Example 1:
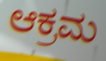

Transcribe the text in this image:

ಆಕ್ರಮ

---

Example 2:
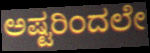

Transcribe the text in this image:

ಅಷ್ಟರಿಂದಲೇ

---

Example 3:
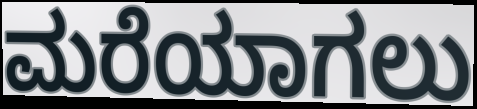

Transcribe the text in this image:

ಮರೆಯಾಗಲು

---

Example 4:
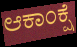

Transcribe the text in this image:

ಆಕಾಂಕ್ಷೆ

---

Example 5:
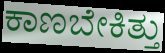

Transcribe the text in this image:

ಕಾಣಬೇಕಿತ್ತು